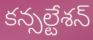
కన్సల్టేశన్